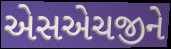
એસએચજીને